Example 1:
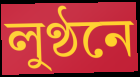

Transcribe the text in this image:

লুণ্ঠনে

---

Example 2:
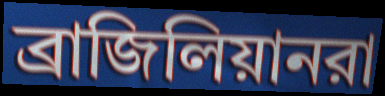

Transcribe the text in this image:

ব্রাজিলিয়ানরা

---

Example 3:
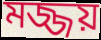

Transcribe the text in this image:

মজ্জয়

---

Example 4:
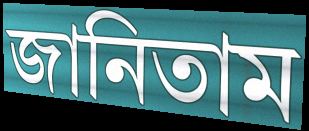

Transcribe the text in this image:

জানিতাম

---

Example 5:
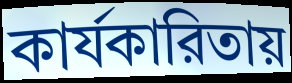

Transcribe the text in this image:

কার্যকারিতায়